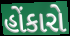
હોંકારો